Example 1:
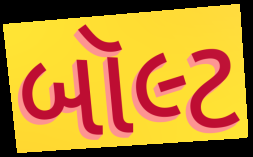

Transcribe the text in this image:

બૉલ્ટ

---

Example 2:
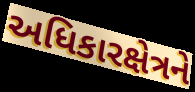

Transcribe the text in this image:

અધિકારક્ષેત્રને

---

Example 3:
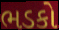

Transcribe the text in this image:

ભડકો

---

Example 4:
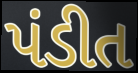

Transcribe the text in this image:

પંડીત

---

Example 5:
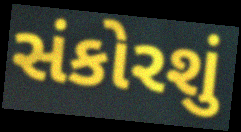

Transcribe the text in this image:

સંકોરશું